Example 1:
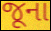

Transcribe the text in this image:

જૂના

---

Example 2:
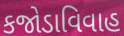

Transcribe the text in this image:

કજોડાવિવાહ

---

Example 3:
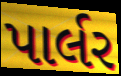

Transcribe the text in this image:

પાર્લર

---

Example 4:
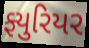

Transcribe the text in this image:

ફ્યુરિયર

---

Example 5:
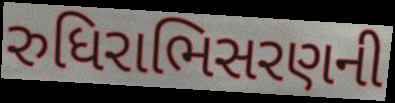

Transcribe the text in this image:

રુધિરાભિસરણની